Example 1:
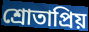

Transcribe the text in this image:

শ্রোতাপ্রিয়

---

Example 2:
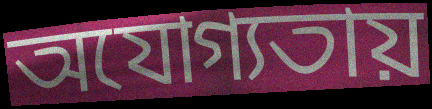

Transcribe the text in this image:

অযোগ্যতায়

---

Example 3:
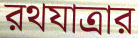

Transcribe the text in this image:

রথযাত্রার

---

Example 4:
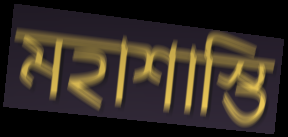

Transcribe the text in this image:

মহাশাস্তি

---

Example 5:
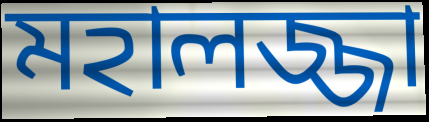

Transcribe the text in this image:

মহালজ্জা